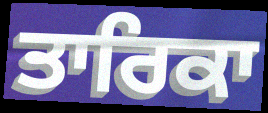
ਤਾਰਿਕਾ